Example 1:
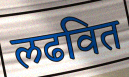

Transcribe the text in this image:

लढवित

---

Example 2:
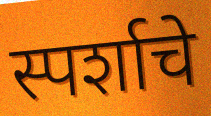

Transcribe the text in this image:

स्पर्शाचे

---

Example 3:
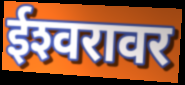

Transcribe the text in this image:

ईश्‍वरावर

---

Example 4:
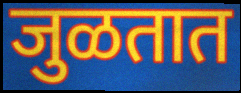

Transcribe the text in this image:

जुळतात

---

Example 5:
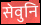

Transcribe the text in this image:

सेवुनि